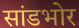
सांडभोर